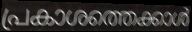
പ്രകാശത്തെക്കാൾ